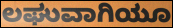
ಲಘುವಾಗಿಯೂ